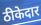
ठीकेदार